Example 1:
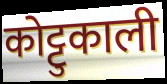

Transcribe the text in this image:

कोट्टुकाली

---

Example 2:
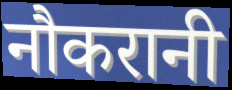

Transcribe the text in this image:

नौकरानी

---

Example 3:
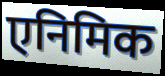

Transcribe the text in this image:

एनिमिक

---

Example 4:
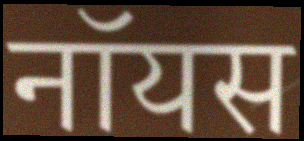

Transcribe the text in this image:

नॉयस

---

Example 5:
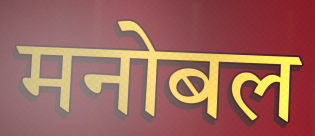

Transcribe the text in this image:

मनोबल